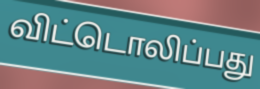
விட்டொலிப்பது